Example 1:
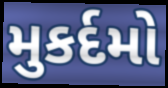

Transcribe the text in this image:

મુકર્દમો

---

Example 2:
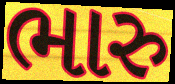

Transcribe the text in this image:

ભારુ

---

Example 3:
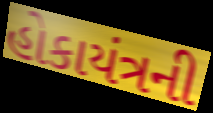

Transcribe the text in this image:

હોકાયંત્રની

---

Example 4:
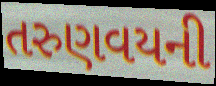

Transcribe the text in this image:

તરુણવયની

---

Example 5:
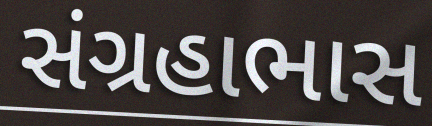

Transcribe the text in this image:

સંગ્રહાભાસ